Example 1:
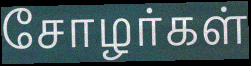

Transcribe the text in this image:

சோழர்கள்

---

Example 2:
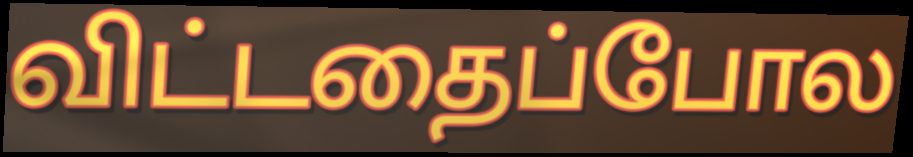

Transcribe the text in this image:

விட்டதைப்போல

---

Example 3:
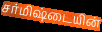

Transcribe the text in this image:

சர்மிஷ்டையின்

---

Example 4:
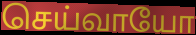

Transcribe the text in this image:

செய்வாயோ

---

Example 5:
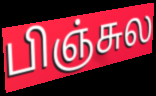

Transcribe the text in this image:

பிஞ்சுல